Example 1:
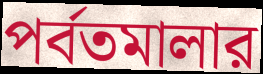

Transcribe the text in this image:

পর্বতমালার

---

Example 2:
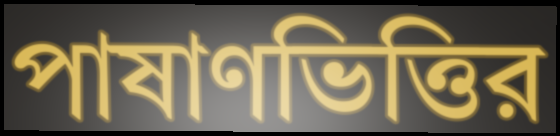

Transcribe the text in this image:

পাষাণভিত্তির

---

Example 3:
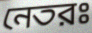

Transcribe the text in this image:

নেতরঃ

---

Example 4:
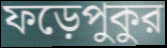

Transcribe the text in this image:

ফড়েপুকুর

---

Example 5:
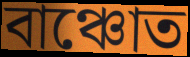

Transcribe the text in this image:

বাঞ্চোত